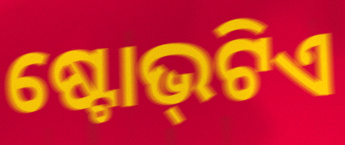
ଷ୍ଟୋଭ୍‌ଟିଏ